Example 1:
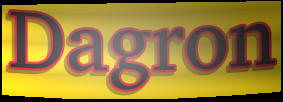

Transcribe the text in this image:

Dagron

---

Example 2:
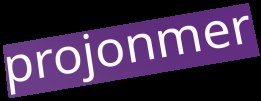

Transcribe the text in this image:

projonmer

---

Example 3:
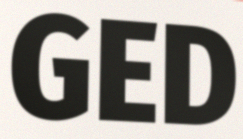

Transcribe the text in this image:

GED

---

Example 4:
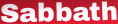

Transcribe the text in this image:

Sabbath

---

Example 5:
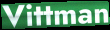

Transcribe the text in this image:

Vittman